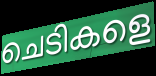
ചെടികളെ